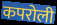
कपरोली